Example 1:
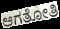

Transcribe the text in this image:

ಆಗತೋತಿ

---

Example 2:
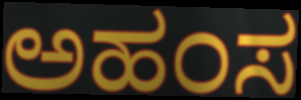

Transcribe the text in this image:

ಅಹಂಸ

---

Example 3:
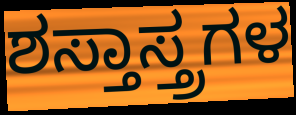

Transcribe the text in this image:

ಶಸ್ತಾಸ್ತ್ರಗಳ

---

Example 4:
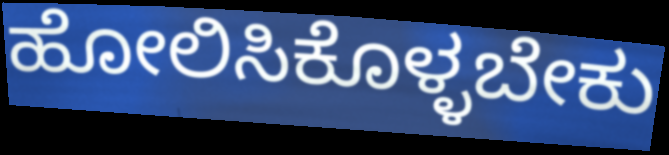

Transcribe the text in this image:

ಹೋಲಿಸಿಕೊಳ್ಳಬೇಕು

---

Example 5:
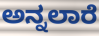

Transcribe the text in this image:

ಅನ್ನಲಾರೆ